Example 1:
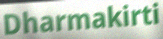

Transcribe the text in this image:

Dharmakirti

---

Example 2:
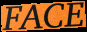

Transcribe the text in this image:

FACE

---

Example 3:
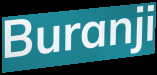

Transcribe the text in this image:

Buranji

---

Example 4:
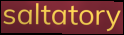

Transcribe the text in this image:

saltatory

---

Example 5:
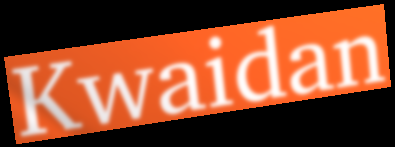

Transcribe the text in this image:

Kwaidan